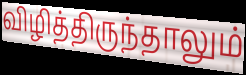
விழித்திருந்தாலும்